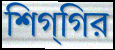
শিগ্‌গির